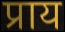
प्राय